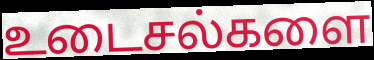
உடைசல்களை